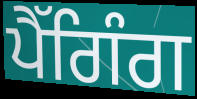
ਪੈੱਗਿੰਗ